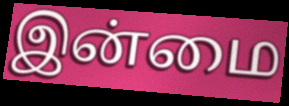
இன்மை